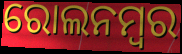
ରୋଲନମ୍ବର